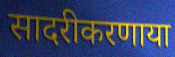
सादरीकरणाया